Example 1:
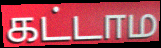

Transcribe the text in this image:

கட்டாம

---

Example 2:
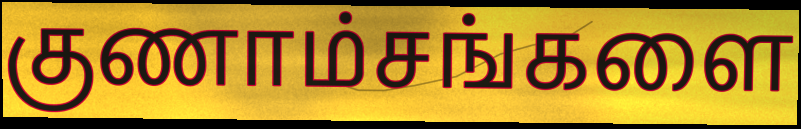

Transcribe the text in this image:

குணாம்சங்களை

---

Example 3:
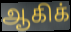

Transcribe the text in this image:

ஆகிக்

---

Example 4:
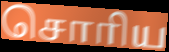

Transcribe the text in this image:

சொரிய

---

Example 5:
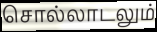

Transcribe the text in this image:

சொல்லாடலும்